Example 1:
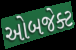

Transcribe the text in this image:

ઓબજેક્ટ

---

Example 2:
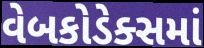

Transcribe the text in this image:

વેબકોડેક્સમાં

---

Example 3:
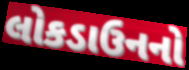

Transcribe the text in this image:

લોકડાઉનનો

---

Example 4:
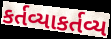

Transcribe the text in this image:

કર્તવ્યાકર્તવ્ય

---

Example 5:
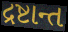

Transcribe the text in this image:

દ્રષ્ટાન્ત